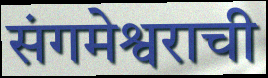
संगमेश्वराची